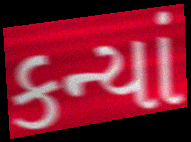
કન્યાં